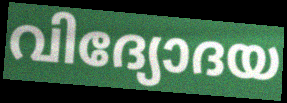
വിദ്യോദയ